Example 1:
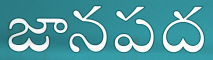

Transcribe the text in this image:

జానపద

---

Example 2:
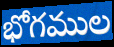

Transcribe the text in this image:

భోగముల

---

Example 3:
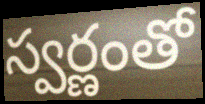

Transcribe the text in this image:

స్వర్ణంతో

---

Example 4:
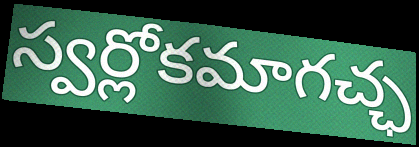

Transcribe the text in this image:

స్వర్లోకమాగచ్ఛ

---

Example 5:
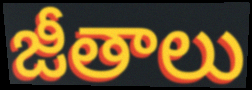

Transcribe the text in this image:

జీతాలు